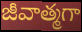
జీవాత్మగా